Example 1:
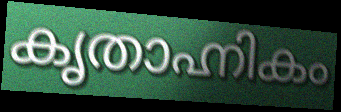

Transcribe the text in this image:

കൃതാഹ്നികം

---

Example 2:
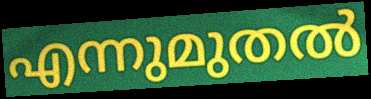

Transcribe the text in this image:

എന്നുമുതൽ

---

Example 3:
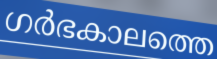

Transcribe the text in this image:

ഗർഭകാലത്തെ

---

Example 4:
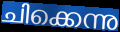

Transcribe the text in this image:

ചിക്കെന്നു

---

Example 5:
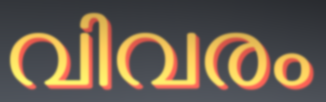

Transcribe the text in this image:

വിവരം